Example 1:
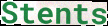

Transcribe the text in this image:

Stents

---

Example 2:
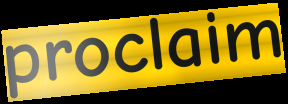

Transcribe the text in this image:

proclaim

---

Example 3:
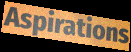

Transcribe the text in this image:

Aspirations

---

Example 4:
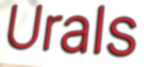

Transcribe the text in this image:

Urals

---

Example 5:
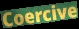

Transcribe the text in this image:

Coercive